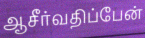
ஆசீர்வதிப்பேன்